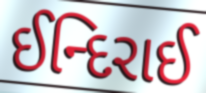
ઈન્દિરાઈ